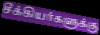
சீக்கியர்களுக்கு